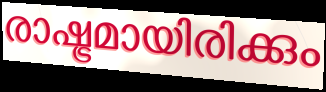
രാഷ്ട്രമായിരിക്കും